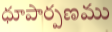
ధూపార్పణము